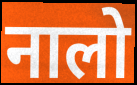
नालो